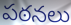
పఠనలు